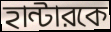
হান্টারকে